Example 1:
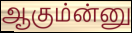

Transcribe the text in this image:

ஆகும்ன்னு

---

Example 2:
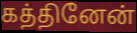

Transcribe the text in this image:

கத்தினேன்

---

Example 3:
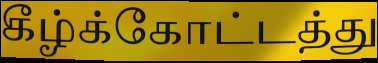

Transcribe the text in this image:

கீழ்க்கோட்டத்து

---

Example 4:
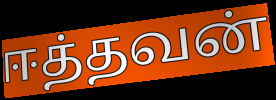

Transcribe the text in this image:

ஈத்தவன்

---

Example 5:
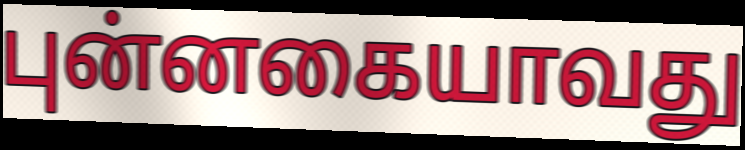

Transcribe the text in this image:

புன்னகையாவது